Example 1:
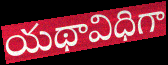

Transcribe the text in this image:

యథావిధిగా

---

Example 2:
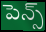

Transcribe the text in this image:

పెన్స్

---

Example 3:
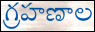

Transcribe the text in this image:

గ్రహణాల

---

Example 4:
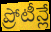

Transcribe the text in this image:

ప్రోటీన్లే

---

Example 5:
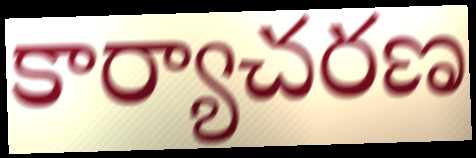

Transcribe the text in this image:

కార్యాచరణ